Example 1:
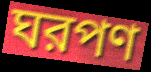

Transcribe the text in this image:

ঘরপণ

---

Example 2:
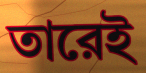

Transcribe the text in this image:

তারেই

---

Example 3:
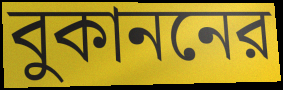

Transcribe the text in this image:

বুকাননের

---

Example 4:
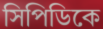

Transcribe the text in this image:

সিপিডিকে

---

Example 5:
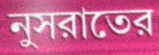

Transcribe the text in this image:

নুসরাতের